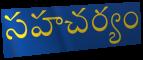
సహచర్యం